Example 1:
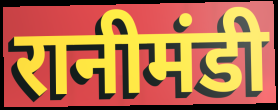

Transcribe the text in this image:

रानीमंडी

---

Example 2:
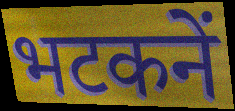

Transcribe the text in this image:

भटकनें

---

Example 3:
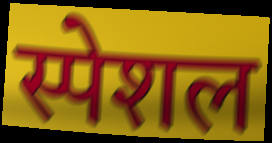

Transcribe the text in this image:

स्पेशल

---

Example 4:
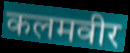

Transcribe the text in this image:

कलमवीर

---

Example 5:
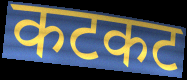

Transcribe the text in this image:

कटकट